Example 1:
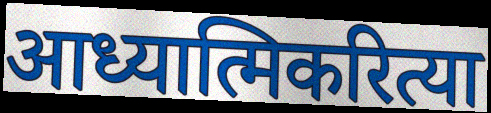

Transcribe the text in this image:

आध्यात्मिकरित्या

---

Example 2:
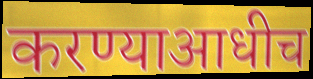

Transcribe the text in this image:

करण्याआधीच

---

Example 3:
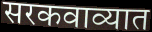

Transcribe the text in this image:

सरकवाव्यात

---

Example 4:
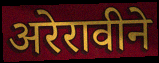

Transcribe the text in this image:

अरेरावीने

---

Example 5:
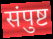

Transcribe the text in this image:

संपुष्ट